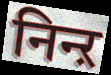
निन्ऱ